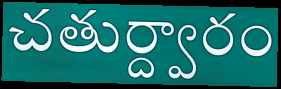
చతుర్ద్వారం